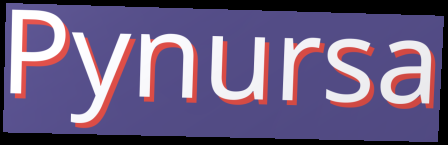
Pynursa